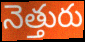
నెత్తురు